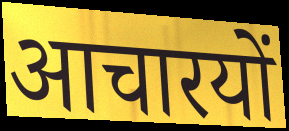
आचारयों